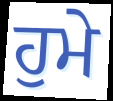
ਹੁਮੇ